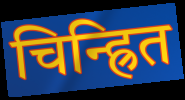
चिन्ह्रित